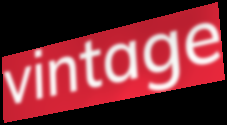
vintage